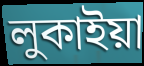
লুকাইয়া